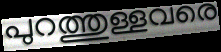
പുറത്തുള്ളവരെ